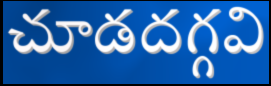
చూడదగ్గవి